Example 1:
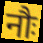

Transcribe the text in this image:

नौः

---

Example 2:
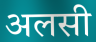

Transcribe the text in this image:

अलसी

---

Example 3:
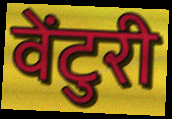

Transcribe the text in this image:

वेंटुरी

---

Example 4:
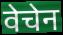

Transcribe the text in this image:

वेचेन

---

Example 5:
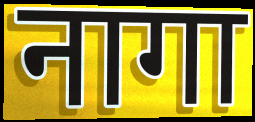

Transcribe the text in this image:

नागा